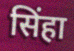
सिंहा